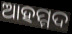
ଆହମ୍ମଦ